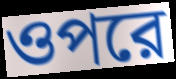
ওপরে